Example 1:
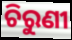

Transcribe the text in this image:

ଚିରୁଣୀ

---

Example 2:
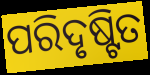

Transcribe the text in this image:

ପରିଦୃଷ୍ଟିତ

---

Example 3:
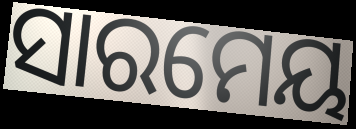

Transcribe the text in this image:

ସାରମେୟ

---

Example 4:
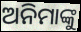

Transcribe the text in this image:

ଅନିମାଙ୍କୁ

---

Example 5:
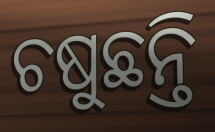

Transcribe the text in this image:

ଚଷୁଛନ୍ତି